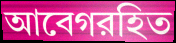
আবেগরহিত